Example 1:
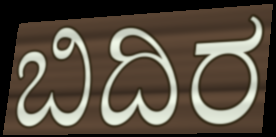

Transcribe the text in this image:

ಬಿದಿರ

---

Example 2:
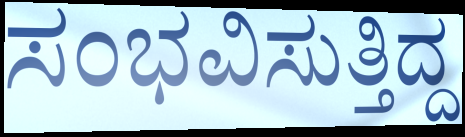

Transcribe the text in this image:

ಸಂಭವಿಸುತ್ತಿದ್ದ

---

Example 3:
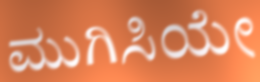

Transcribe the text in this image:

ಮುಗಿಸಿಯೇ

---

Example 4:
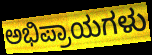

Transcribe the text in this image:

ಅಭಿಪ್ರಾಯಗಳು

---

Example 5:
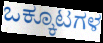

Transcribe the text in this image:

ಒಕ್ಕೂಟಗಳ